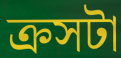
ক্রসটা